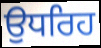
ਉਧਰਿਹ